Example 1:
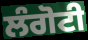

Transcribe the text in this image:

ਲੰਗੋਟੀ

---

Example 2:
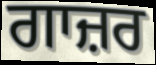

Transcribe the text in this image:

ਗਾਜ਼ਰ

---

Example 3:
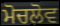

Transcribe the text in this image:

ਮੋਚਲੋਵ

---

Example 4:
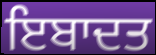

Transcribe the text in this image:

ਇਬਾਦਤ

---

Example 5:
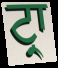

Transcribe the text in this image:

ਟ੍ਰਾ